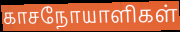
காசநோயாளிகள்